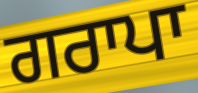
ਗਰਾਪਾ